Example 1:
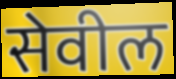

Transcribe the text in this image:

सेवील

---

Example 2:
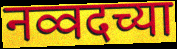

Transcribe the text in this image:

नव्वदच्या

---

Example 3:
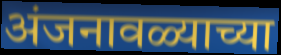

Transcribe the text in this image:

अंजनावळ्याच्या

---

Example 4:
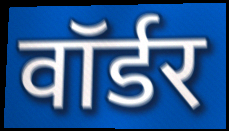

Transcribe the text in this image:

वॉर्डर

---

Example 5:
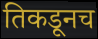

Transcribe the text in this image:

तिकडूनच